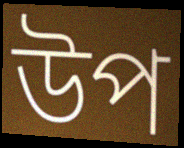
উপ